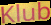
Klub